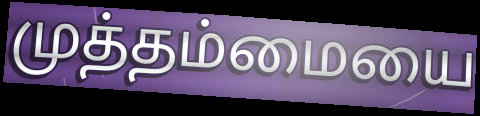
முத்தம்மையை